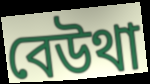
বেউথা